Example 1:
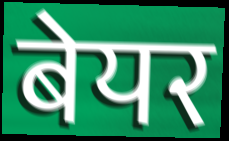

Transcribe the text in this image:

बेयर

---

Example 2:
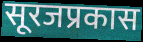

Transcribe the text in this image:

सूरजप्रकास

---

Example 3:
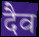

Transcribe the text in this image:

दैव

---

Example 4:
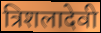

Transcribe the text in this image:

त्रिशलादेवी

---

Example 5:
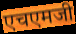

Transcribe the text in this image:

एचएमजी